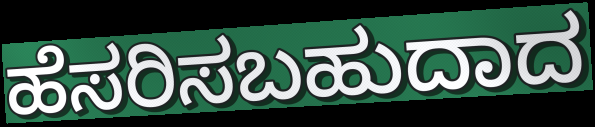
ಹೆಸರಿಸಬಹುದಾದ